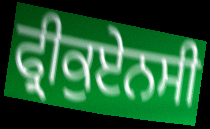
ਫ੍ਰੀਕੁਏਨਸੀ